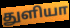
துளியா